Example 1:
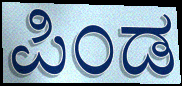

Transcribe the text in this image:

ಪಿಂಡ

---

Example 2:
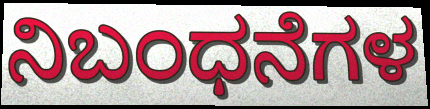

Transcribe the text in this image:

ನಿಬಂಧನೆಗಳ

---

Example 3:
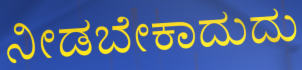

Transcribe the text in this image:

ನೀಡಬೇಕಾದುದು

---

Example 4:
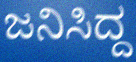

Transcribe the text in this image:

ಜನಿಸಿದ್ದ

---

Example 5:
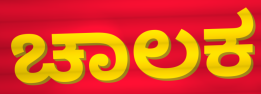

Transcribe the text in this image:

ಚಾಲಕ